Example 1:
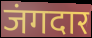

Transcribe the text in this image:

जंगदार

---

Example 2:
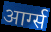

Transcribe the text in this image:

आर्ग्स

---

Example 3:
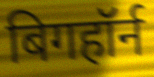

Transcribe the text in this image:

बिगहॉर्न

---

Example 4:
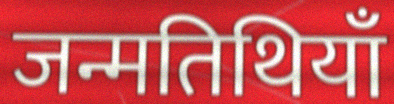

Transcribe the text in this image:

जन्मतिथियाँ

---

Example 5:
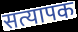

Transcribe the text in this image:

सत्यापक